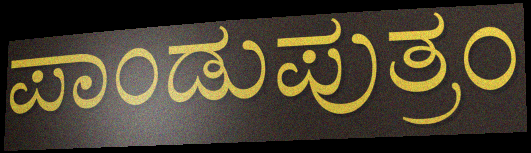
ಪಾಂಡುಪುತ್ರಂ